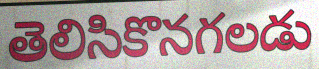
తెలిసికొనగలడు